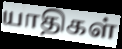
யாதிகள்